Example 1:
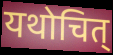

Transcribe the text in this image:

यथोचित्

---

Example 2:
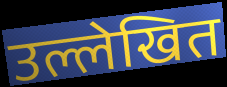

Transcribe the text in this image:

उल्‍लेखित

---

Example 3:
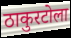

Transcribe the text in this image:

ठाकुरटोला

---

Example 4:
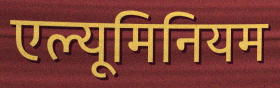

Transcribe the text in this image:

एल्यूमिनियम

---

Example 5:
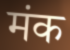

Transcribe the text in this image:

मंक